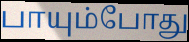
பாயும்போது